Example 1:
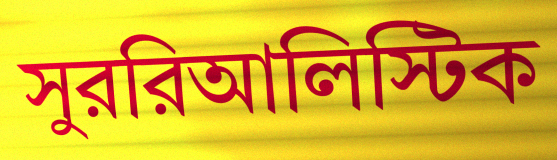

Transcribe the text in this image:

সুররিআলিস্টিক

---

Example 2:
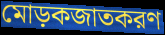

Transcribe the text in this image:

মোড়কজাতকরণ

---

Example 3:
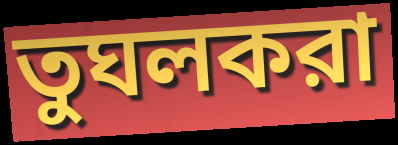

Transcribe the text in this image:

তুঘলকরা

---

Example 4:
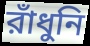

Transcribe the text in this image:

রাঁধুনি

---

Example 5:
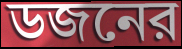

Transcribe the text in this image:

ডজনের